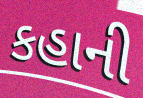
કહાની